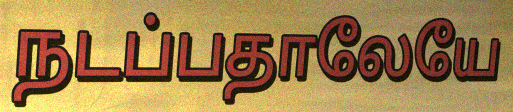
நடப்பதாலேயே